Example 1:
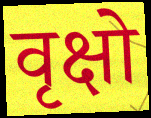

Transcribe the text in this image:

वृक्षो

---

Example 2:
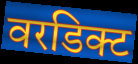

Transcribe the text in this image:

वरडिक्ट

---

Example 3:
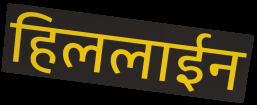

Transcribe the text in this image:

हिललाईन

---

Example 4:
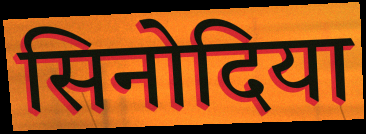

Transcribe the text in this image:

सिनोदिया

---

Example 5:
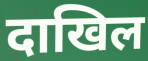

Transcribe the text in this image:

दाखिल